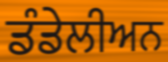
ਡੰਡੇਲੀਅਨ